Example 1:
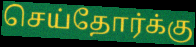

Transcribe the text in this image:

செய்தோர்க்கு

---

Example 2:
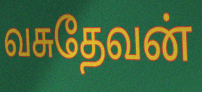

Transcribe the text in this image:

வசுதேவன்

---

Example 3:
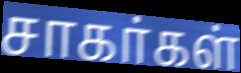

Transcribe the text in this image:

சாகர்கள்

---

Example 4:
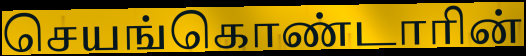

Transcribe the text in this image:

செயங்கொண்டாரின்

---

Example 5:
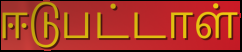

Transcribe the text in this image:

ஈடுபட்டாள்